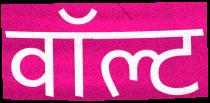
वॉल्ट